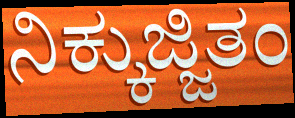
ನಿಕ್ಕುಜ್ಜಿತಂ